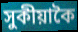
সুকীয়াকৈ